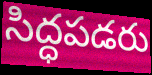
సిద్ధపడరు